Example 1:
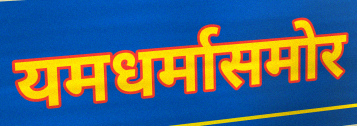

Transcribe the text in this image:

यमधर्मासमोर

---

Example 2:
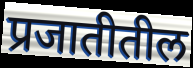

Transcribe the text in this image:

प्रजातीतील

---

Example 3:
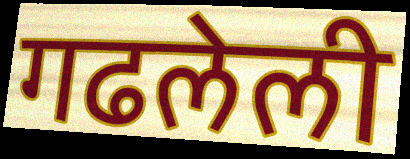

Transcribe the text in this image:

गढलेली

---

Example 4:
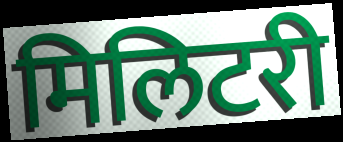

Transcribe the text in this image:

मिलिटरी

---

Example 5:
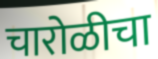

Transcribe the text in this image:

चारोळीचा